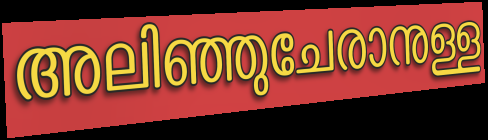
അലിഞ്ഞുചേരാനുള്ള